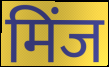
मिंज